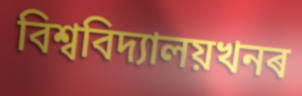
বিশ্ববিদ্যালয়খনৰ